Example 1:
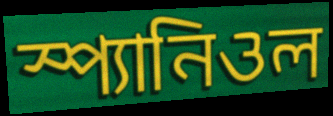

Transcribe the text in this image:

স্প্যানিওল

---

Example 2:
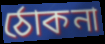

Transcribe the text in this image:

ঠোকনা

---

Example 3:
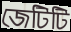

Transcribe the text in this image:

জেটিটি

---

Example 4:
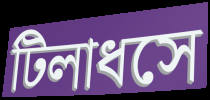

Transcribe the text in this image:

টিলাধসে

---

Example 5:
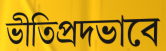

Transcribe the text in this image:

ভীতিপ্রদভাবে